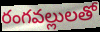
రంగవల్లులతో